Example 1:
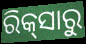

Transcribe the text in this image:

ରିକ୍‌ସାରୁ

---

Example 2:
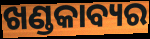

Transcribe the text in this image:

ଖଣ୍ଡକାବ୍ୟର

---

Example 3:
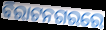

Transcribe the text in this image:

ବିରାଟନଗରରେ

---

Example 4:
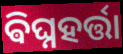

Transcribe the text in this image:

ଵିଘ୍ନହର୍ତ୍ତା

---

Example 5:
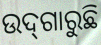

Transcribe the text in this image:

ଉଦ୍‌ଗାରୁଛି